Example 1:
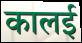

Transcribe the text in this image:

कालई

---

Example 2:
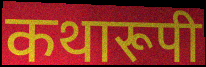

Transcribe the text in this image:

कथारूपी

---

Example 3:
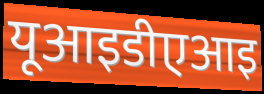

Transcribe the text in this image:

यूआइडीएआइ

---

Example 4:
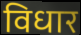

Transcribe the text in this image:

विधार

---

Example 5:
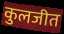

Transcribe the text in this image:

कुलजीत